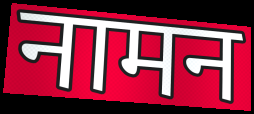
नामन